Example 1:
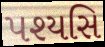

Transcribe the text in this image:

પશ્યસિ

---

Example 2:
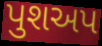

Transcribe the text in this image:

પુશઅપ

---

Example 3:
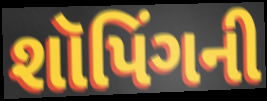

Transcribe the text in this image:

શૉપિંગની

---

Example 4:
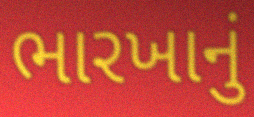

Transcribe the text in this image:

ભારખાનું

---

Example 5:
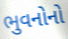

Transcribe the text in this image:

ભુવનોનો